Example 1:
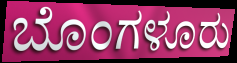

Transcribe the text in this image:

ಬೊಂಗಳೂರು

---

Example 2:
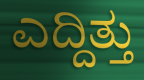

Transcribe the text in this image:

ಎದ್ದಿತ್ತು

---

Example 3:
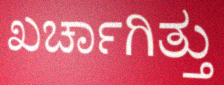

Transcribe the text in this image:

ಖರ್ಚಾಗಿತ್ತು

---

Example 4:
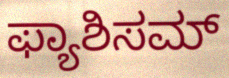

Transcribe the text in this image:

ಫ್ಯಾಶಿಸಮ್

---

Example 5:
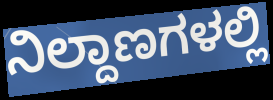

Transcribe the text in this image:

ನಿಲ್ದಾಣಗಳಲ್ಲಿ